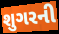
શુગરની